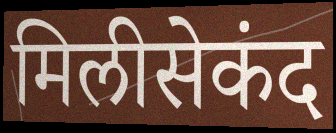
मिलीसेकंद